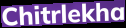
Chitrlekha